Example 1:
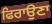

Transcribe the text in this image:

ਫਿਰਾਉਣਾ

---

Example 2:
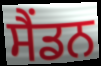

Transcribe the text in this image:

ਸੈਂਡਨ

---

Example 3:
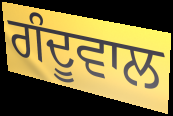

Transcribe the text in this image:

ਗੰਦੂਵਾਲ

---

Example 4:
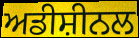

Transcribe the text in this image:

ਅਡੀਸ਼ੀਨਲ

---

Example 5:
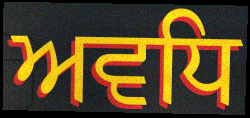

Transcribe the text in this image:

ਅਵਧਿ